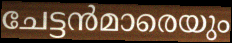
ചേട്ടൻമാരെയും